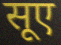
सूए